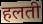
हलती